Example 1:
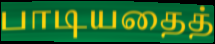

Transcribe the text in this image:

பாடியதைத்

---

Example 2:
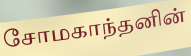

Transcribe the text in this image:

சோமகாந்தனின்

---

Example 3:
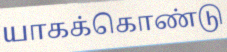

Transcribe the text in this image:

யாகக்கொண்டு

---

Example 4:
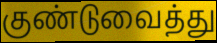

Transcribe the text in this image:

குண்டுவைத்து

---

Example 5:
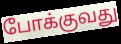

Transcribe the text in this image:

போக்குவது